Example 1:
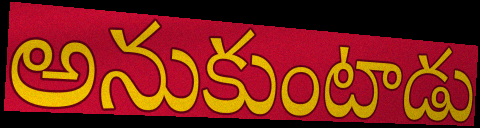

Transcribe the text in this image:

అనుకుంటాడు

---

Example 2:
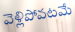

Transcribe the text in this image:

వెళ్లిపోవటమే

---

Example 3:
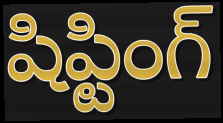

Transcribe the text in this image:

షిప్టింగ్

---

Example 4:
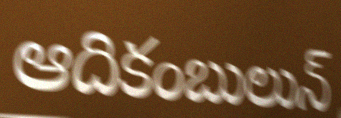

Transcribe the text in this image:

ఆదికంబులున్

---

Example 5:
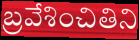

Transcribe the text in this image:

బ్రవేశించితిని